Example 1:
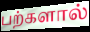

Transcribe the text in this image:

பற்களால்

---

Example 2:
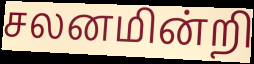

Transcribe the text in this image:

சலனமின்றி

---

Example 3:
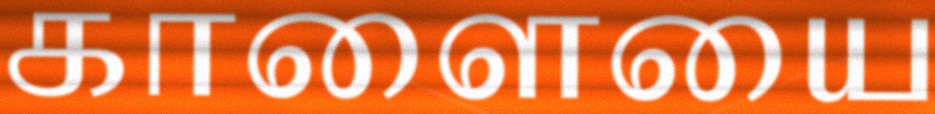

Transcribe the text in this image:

காளையை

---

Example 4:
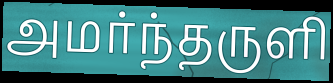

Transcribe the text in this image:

அமர்ந்தருளி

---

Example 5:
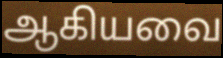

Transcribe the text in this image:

ஆகியவை